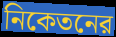
নিকেতনের